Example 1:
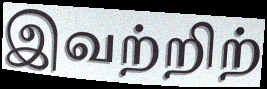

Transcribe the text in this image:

இவற்றிற்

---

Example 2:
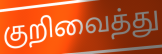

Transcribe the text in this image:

குறிவைத்து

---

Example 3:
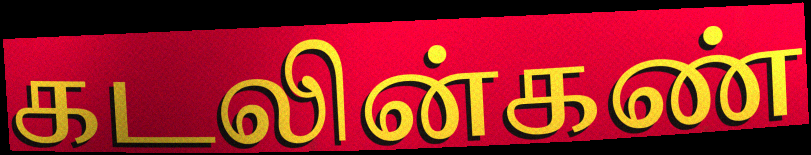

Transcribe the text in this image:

கடலின்கண்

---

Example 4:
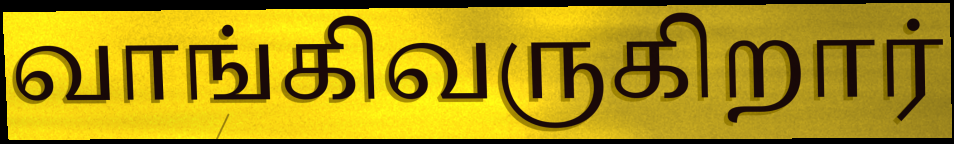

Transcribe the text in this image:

வாங்கிவருகிறார்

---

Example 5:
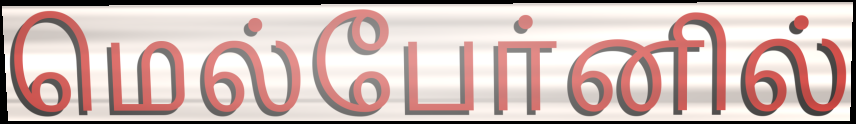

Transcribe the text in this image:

மெல்பேர்னில்